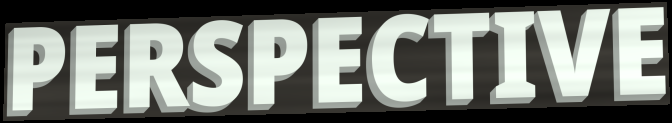
PERSPECTIVE